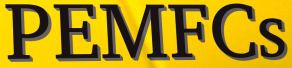
PEMFCs